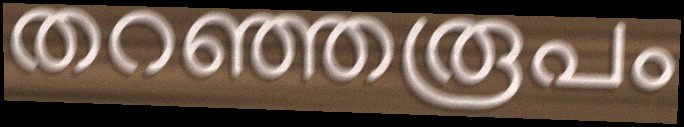
തറഞ്ഞരൂപം